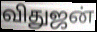
விதுஜன்